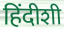
हिंदीशी